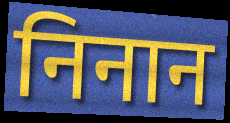
निनान